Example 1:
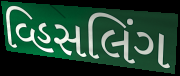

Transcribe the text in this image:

વ્હિસલિંગ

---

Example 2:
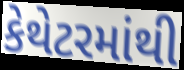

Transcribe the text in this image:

કેથેટરમાંથી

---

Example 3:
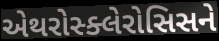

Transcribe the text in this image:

એથરોસ્ક્લેરોસિસને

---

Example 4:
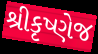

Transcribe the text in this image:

શ્રીકૃષ્ણેજ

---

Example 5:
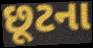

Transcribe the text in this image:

છૂટના